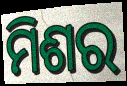
ମିଶର